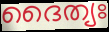
ദൈത്യഃ